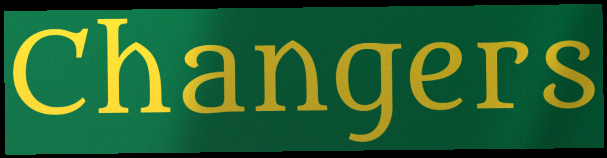
Changers